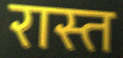
रास्त